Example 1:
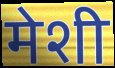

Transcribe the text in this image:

मेशी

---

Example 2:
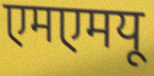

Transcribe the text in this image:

एमएमयू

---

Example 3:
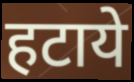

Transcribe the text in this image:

हटाये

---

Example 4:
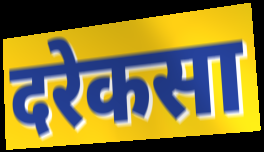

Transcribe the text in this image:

दरेकसा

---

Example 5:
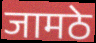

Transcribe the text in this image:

जामठे